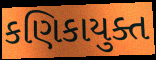
કણિકાયુક્ત